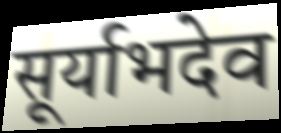
सूर्याभदेव